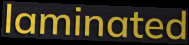
laminated